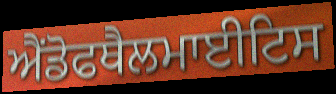
ਐਂਡੋਫਥੈਲਮਾਈਟਿਸ